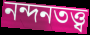
নন্দনতত্ত্ব